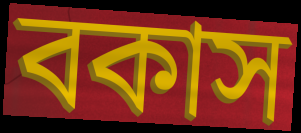
বকাস